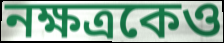
নক্ষত্রকেও